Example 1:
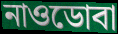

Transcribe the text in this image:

নাওডোবা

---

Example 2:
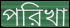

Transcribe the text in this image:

পরিখা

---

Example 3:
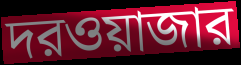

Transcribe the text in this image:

দরওয়াজার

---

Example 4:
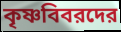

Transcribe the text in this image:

কৃষ্ণবিবরদের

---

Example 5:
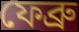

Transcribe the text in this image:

ফেব্রু